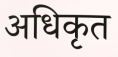
अधिकृत